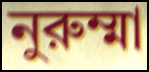
নুরুম্মা